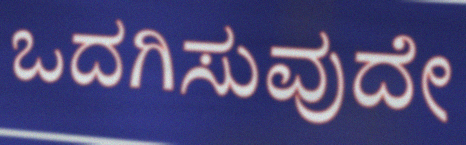
ಒದಗಿಸುವುದೇ